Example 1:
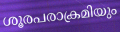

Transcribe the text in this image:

ശൂരപരാക്രമിയും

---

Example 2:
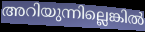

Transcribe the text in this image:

അറിയുന്നില്ലെങ്കിൽ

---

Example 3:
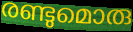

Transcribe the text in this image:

രണ്ടുമൊരു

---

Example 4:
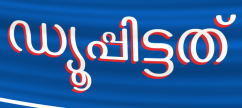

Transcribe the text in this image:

ഡ്യൂപ്പിട്ടത്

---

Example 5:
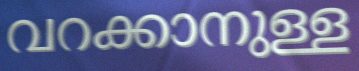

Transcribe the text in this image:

വറക്കാനുള്ള